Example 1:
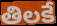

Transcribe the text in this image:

తిలకే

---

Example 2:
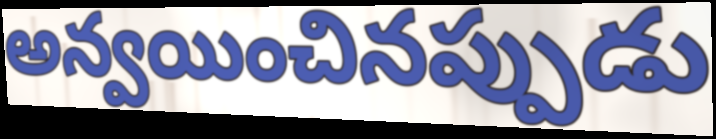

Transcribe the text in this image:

అన్వయించినప్పుడు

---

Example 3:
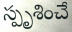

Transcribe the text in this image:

స్పృశించే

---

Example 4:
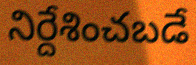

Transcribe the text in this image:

నిర్దేశించబడే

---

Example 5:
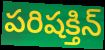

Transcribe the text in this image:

పరిషక్తిన్